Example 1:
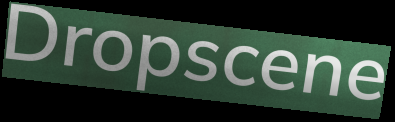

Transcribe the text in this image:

Dropscene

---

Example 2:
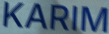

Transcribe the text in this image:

KARIM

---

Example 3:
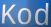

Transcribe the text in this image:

Kod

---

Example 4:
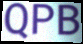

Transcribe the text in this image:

QPB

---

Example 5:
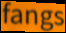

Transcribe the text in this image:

fangs